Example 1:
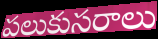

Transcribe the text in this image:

పలుకుసరాలు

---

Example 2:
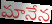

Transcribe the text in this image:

మానేన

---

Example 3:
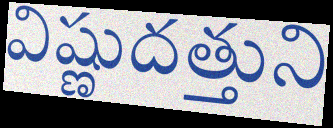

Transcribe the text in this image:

విష్ణుదత్తుని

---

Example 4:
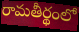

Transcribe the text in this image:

రామతీర్థంలో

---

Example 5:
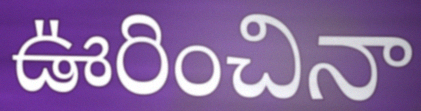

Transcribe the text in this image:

ఊరించినా